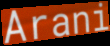
Arani